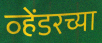
व्हेंडरच्या